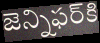
జెన్నిఫర్‌కి